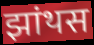
झांथस